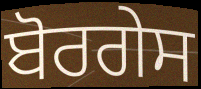
ਬੋਰਗੇਸ